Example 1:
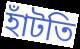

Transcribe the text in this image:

হাঁটতি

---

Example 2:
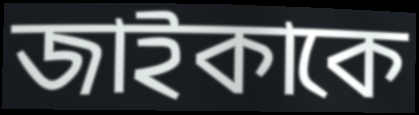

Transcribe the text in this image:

জাইকাকে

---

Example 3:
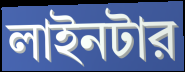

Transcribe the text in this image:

লাইনটার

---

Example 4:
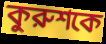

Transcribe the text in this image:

কুরুশকে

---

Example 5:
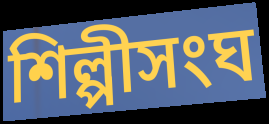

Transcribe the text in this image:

শিল্পীসংঘ